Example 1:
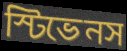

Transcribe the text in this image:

স্টিভেনস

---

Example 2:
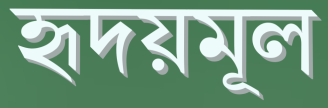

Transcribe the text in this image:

হৃদয়মূল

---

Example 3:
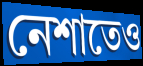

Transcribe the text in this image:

নেশাতেও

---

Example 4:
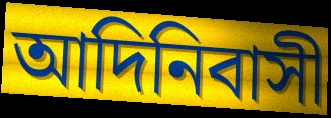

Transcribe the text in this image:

আদিনিবাসী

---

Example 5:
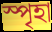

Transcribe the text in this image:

স্পৃহা